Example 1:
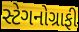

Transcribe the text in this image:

સ્ટેગનોગ્રાફી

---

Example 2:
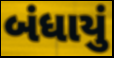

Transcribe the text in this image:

બંધાયું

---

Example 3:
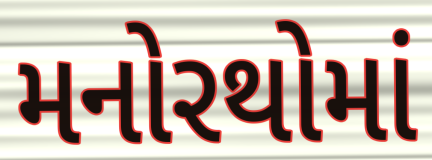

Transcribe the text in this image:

મનોરથોમાં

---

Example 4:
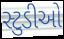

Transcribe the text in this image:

સ્ટુડીઓ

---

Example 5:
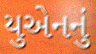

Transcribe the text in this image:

યુએનનું